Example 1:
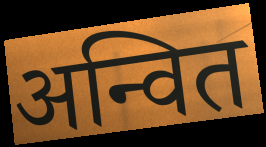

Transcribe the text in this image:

अन्वित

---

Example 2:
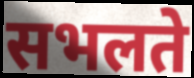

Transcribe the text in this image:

सभलते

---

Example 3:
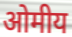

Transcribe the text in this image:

ओमीय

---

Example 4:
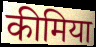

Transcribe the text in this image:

कीमिया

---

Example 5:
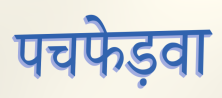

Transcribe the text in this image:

पचफेड़वा